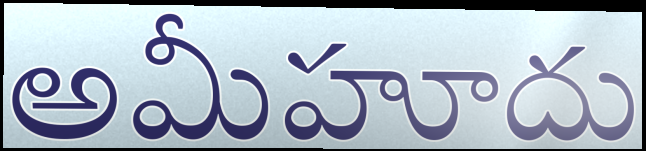
అమీహూదు